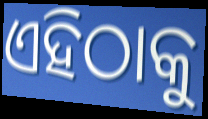
ଏହିଠାକୁ